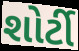
શોર્ટી